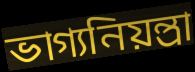
ভাগ্যনিয়ন্ত্রা